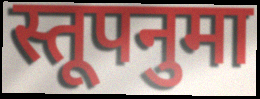
स्तूपनुमा